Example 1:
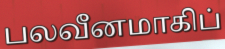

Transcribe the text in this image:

பலவீனமாகிப்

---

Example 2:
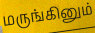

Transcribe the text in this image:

மருங்கினும்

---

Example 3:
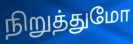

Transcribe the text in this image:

நிறுத்துமோ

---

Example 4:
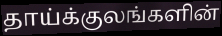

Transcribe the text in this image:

தாய்க்குலங்களின்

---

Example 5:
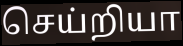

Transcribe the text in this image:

செய்றியா